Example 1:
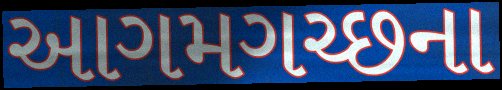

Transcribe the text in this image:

આગમગચ્છના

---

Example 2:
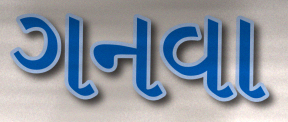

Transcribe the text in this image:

ગનવા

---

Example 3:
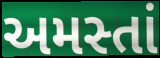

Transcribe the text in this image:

અમસ્તાં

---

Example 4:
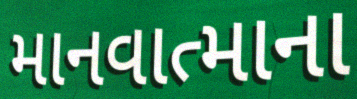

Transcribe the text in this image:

માનવાત્માના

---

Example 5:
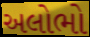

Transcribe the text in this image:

અલોભો